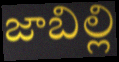
జాబిల్లి